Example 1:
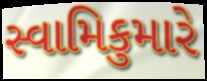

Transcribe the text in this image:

સ્વામિકુમારે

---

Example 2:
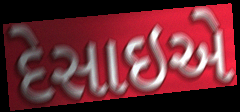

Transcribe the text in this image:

દેસાઇએ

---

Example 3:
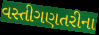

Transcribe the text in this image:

વસ્તીગણતરીના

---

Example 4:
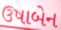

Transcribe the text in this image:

ઉષાબેન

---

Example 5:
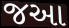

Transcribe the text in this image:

જઆ